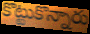
కొట్టుకొన్నారు